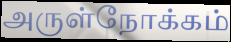
அருள்நோக்கம்